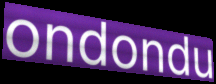
ondondu